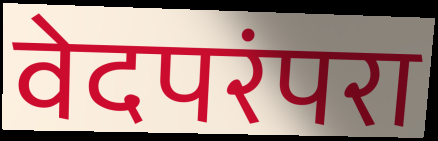
वेदपरंपरा